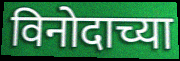
विनोदाच्या